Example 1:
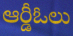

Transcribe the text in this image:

ఆర్డీఓలు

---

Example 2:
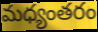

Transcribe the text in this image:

మధ్యంతరం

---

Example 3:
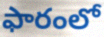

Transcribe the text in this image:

ఫారంలో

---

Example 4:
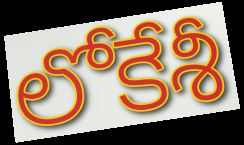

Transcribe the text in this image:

లోకేశీ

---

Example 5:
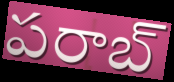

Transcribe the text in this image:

పరాబ్